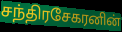
சந்திரசேகரனின்